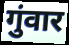
गुंवार